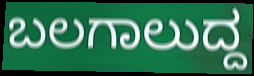
ಬಲಗಾಲುದ್ದ